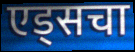
एड्सचा